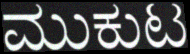
ಮುಕುಟ